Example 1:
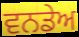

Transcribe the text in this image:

ਵਨਡੇਅ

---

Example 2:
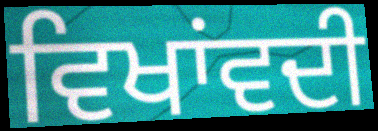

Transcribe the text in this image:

ਵਿਖਾਂਵਦੀ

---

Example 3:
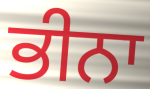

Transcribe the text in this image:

ਭੀਨਾ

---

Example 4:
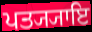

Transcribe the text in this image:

ਪਤ੍ਯ੍ਯਾਇ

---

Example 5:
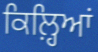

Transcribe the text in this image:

ਕਿਲ਼੍ਹਿਆਂ